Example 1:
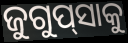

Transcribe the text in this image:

ଜୁଗୁପ୍‍ସାକୁ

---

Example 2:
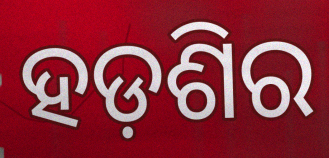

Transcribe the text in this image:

ହଡ଼ଶିର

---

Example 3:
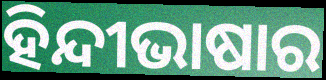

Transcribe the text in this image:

ହିନ୍ଦୀଭାଷାର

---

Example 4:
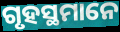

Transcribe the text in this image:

ଗୃହସ୍ଥମାନେ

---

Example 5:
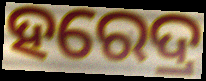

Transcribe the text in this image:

ହରେଦ୍ର